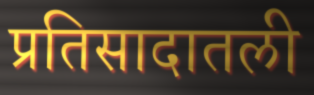
प्रतिसादातली